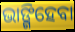
ଭାଙ୍ଗିହେବା